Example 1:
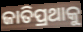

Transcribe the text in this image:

ଜାତିପ୍ରଥାକୁ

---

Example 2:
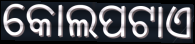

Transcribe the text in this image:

କୋଲପଟାଏ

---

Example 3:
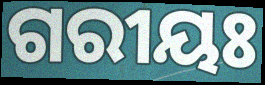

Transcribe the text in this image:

ଗରୀୟଃ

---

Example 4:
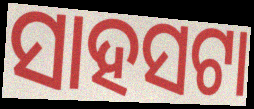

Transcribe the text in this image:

ସାହସଟା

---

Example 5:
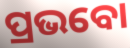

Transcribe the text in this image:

ପ୍ରଭବୋ